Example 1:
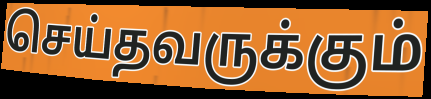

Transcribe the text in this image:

செய்தவருக்கும்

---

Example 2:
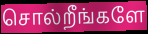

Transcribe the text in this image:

சொல்றீங்களே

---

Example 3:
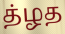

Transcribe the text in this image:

த்ழத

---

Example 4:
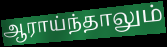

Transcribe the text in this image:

ஆராய்ந்தாலும்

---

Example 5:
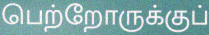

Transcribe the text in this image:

பெற்றோருக்குப்